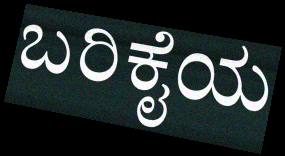
ಬರಿಕೈಯ